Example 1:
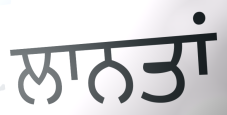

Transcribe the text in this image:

ਲਾਨਤਾਂ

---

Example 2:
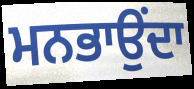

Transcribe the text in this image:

ਮਨਭਾਉਂਦਾ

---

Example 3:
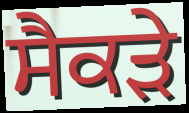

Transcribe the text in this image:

ਸੈਕੜੇ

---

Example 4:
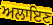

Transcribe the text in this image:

ਅਲਾਇਣ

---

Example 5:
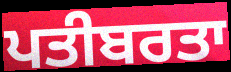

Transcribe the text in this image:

ਪਤੀਬਰਤਾ